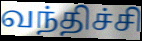
வந்திச்சி